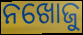
ନଖୋଜୁ